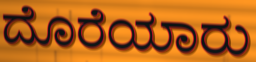
ದೊರೆಯಾರು